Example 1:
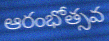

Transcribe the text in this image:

ఆరంభోత్సవ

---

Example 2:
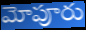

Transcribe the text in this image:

మోపూరు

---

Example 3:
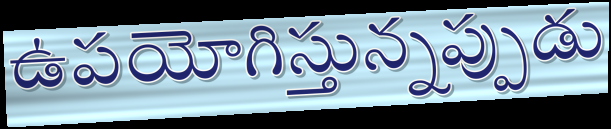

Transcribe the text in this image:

ఉపయోగిస్తున్నప్పుడు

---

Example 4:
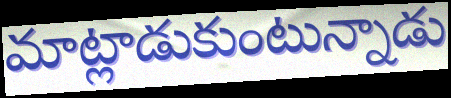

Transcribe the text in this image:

మాట్లాడుకుంటున్నాడు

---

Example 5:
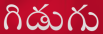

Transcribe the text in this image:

గిడుగు